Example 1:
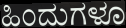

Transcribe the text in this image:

ಹಿಂದುಗಳೂ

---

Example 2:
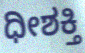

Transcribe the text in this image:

ಧೀಶಕ್ತಿ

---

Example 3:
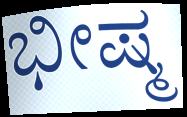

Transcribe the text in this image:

ಭೀಷ್ಮ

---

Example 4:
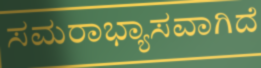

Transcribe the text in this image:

ಸಮರಾಭ್ಯಾಸವಾಗಿದೆ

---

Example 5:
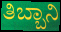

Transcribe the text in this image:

ತಿಬ್ಬಾನಿ